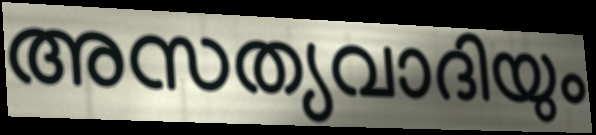
അസത്യവാദിയും